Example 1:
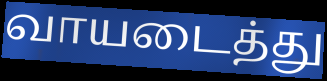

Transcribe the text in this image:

வாயடைத்து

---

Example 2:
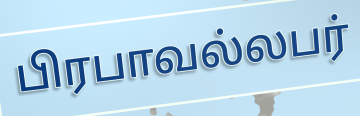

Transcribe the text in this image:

பிரபாவல்லபர்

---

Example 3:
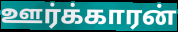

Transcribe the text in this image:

ஊர்க்காரன்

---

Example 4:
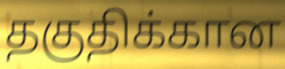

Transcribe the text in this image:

தகுதிக்கான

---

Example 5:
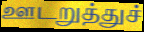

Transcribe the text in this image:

ஊடறுத்துச்